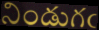
నిండుగఁ